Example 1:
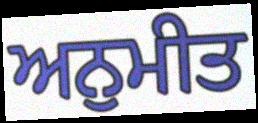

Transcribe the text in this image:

ਅਨੁਮੀਤ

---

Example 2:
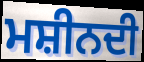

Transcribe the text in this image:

ਮਸ਼ੀਨਦੀ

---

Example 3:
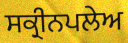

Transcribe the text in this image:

ਸਕ੍ਰੀਨਪਲੇਅ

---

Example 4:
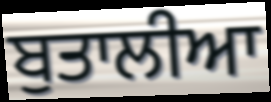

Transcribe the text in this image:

ਬੁਤਾਲੀਆ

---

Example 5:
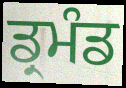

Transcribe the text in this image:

ਡ੍ਰਮੰਡ